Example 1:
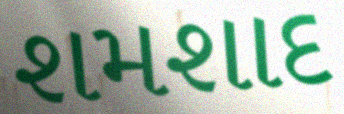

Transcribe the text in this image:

શમશાદ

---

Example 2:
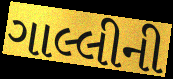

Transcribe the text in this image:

ગાલ્લીની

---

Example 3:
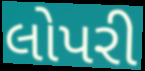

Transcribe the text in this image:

લોપરી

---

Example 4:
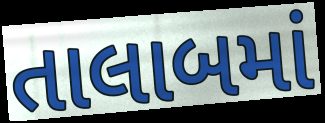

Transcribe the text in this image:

તાલાબમાં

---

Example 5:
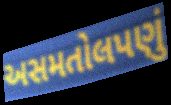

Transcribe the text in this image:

અસમતોલપણું